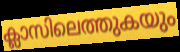
ക്ലാസിലെത്തുകയും